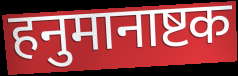
हनुमानाष्टक